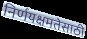
निर्णयक्षमतेसाठी